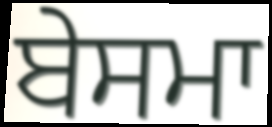
ਬੇਸਮਾ